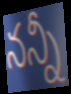
నన్నీ